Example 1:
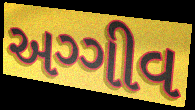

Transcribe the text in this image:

અગ્ગીવ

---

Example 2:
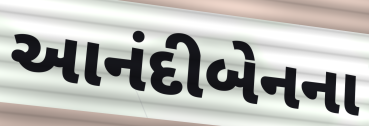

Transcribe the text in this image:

આનંદીબેનના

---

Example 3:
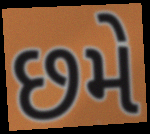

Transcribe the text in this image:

છમે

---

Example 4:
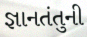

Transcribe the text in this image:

જ્ઞાનતંતુની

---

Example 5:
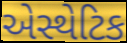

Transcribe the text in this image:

એસ્થેટિક